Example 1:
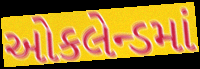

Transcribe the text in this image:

ઓકલેન્ડમાં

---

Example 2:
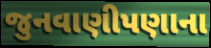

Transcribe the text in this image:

જુનવાણીપણાના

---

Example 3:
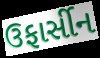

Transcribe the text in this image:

ઉફાર્સીન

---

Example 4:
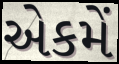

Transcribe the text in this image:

એકમેં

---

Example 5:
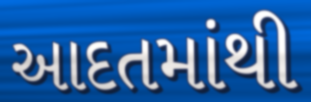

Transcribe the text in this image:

આદતમાંથી